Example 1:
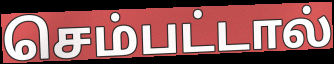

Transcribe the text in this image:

செம்பட்டால்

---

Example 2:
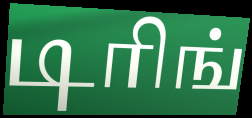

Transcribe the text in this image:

டிரிங்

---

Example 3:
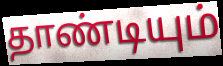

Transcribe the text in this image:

தாண்டியும்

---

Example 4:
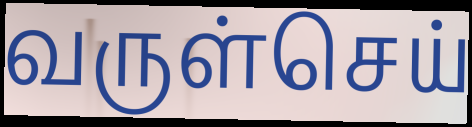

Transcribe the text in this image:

வருள்செய்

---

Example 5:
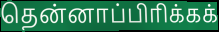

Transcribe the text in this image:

தென்னாப்பிரிக்கக்